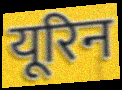
यूरिन